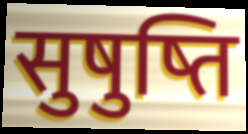
सुषुष्ति